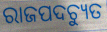
ରାଜପଦଚ୍ୟୁତ